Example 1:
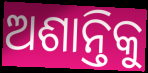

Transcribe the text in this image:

ଅଶାନ୍ତିକୁ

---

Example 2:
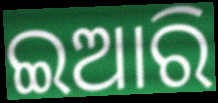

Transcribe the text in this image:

ଇଆରି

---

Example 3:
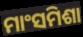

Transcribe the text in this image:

ମାଂସମିଶା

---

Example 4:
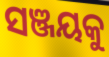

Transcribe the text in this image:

ସଞ୍ଜୟକୁ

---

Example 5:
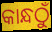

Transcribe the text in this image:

କାନ୍ଧଠୁଁ